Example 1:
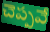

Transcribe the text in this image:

చెప్పవే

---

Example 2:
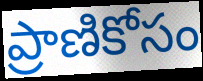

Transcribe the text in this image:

ప్రాణికోసం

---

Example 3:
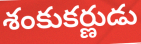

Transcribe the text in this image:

శంకుకర్ణుడు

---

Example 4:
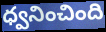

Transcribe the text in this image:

ధ్వనించింది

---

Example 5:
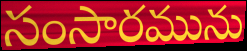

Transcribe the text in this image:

సంసారమును